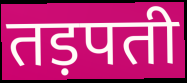
तड़पती